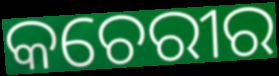
କଚେରୀର